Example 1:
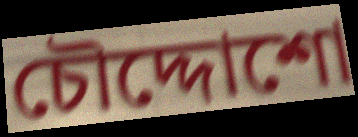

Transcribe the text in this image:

চৌদ্দোশো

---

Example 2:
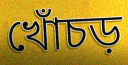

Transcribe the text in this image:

খোঁচড়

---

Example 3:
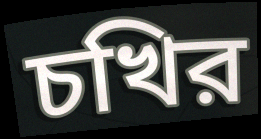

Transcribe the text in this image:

চখির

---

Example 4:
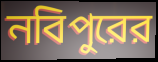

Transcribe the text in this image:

নবিপুরের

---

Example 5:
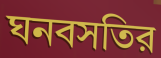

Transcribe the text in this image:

ঘনবসতির